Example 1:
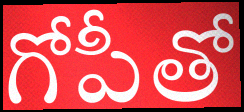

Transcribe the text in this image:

గోపీతో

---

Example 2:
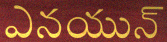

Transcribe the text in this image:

ఎనయున్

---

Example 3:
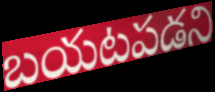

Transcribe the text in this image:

బయటపడని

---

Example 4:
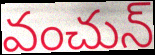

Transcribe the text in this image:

వంచున్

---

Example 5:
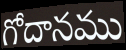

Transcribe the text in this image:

గోదానము